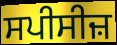
ਸਪੀਸੀਜ਼